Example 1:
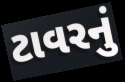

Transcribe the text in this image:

ટાવરનું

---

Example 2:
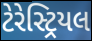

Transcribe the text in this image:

ટેરેસ્ટ્રિયલ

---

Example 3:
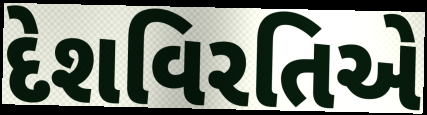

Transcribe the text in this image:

દેશવિરતિએ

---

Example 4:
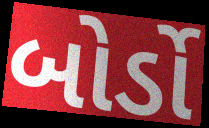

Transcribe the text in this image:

બોર્ડો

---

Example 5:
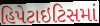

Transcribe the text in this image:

હિપેટાઇટિસમાં